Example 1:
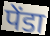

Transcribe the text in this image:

पेंडा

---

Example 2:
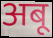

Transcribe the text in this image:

अबू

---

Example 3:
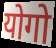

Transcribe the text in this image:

योगो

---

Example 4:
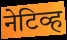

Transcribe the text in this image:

नेटिव्ह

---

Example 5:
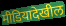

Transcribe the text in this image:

मीडियादेखील